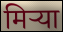
मिऱ्या